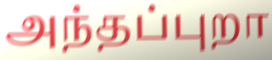
அந்தப்புறா